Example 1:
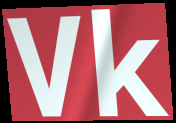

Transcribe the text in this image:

Vk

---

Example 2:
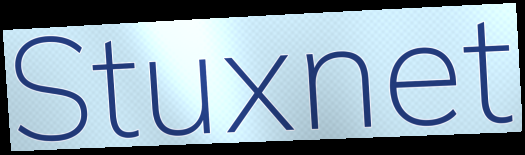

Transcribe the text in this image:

Stuxnet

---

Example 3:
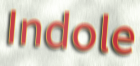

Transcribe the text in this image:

Indole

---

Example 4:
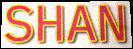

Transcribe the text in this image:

SHAN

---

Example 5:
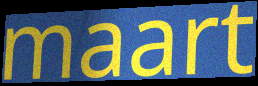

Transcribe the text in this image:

maart